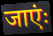
जाएंः